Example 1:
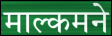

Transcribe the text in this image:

माल्कमने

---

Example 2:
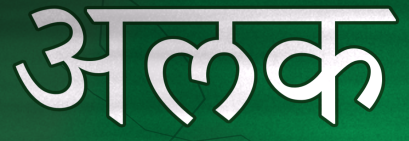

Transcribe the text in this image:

अलक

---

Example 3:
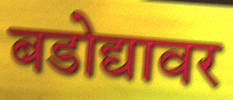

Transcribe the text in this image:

बडोद्यावर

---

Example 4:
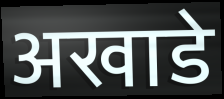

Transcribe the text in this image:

अखाडे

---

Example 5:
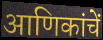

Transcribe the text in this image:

आणिकांचें